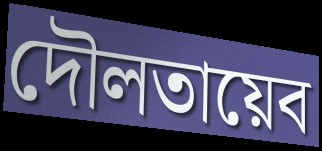
দৌলতায়েব